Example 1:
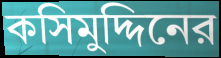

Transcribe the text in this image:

কসিমুদ্দিনের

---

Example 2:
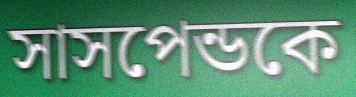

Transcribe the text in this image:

সাসপেন্ডকে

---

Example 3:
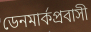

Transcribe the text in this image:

ডেনমার্কপ্রবাসী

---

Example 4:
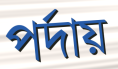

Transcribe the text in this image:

পর্দায়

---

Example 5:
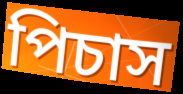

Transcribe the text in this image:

পিচাস